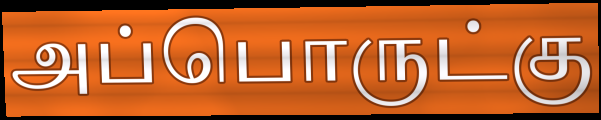
அப்பொருட்கு